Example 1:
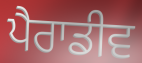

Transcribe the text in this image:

ਪੈਰਾਡੀਵ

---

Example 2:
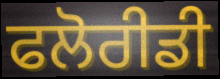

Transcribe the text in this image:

ਫਲੋਰੀਡੀ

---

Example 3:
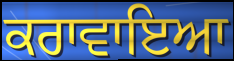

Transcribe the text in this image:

ਕਰਾਵਾਇਆ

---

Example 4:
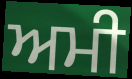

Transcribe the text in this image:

ਅਮੀ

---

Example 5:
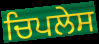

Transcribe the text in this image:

ਚਿਪਲੇਸ